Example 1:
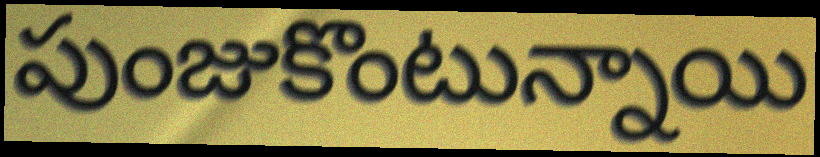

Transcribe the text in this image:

పుంజుకొంటున్నాయి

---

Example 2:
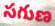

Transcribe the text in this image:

సగుణ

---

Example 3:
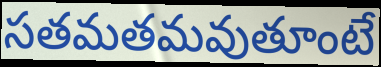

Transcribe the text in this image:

సతమతమవుతూంటే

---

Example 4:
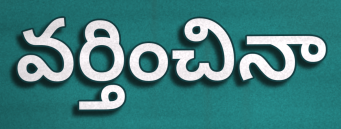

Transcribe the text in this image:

వర్తించినా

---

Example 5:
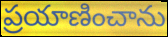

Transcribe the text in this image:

ప్రయాణించాను